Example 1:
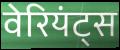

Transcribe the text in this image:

वेरियंट्स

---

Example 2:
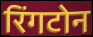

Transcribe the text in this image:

रिंगटोन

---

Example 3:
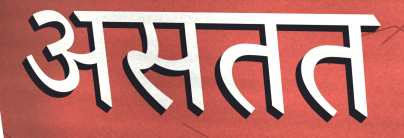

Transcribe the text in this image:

असतत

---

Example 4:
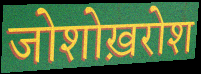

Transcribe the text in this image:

जोशोख़रोश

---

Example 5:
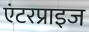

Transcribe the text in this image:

एंटरप्राइज